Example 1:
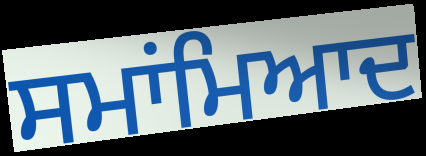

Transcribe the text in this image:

ਸਮਾਂਮਿਆਦ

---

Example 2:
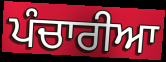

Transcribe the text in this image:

ਪੰਚਾਰੀਆ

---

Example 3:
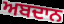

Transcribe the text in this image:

ਅਬਦਾਨ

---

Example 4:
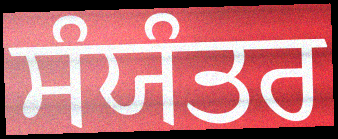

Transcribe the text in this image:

ਸੰਯੰਤਰ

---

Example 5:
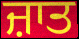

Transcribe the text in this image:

ਜ਼ਾਤ